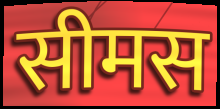
सीमस